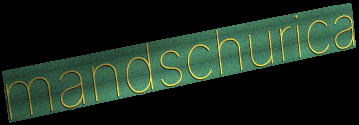
mandschurica